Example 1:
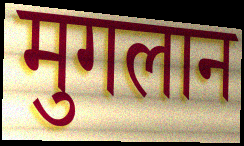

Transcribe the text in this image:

मुगलान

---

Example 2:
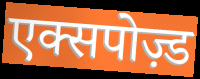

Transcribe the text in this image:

एक्सपोज़्ड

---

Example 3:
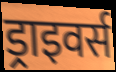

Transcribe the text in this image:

ड्राइवर्स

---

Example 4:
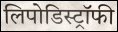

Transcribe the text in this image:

लिपोडिस्ट्रॉफी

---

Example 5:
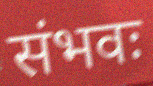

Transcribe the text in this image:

संभवः